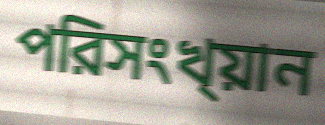
পরিসংখ্য়ান